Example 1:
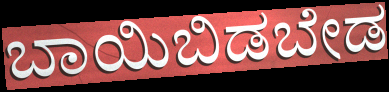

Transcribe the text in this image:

ಬಾಯಿಬಿಡಬೇಡ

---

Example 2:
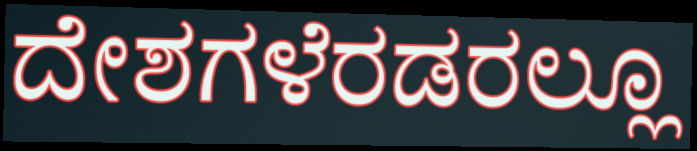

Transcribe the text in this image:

ದೇಶಗಳೆರಡರಲ್ಲೂ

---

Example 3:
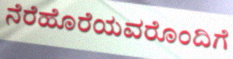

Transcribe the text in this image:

ನೆರೆಹೊರೆಯವರೊಂದಿಗೆ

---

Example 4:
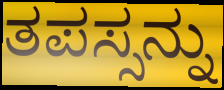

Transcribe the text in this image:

ತಪಸ್ಸನ್ನು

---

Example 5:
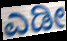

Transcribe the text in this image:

ಎಡೀ